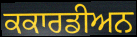
ਕਕਾਰਡੀਅਨ